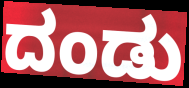
ದಂಡು